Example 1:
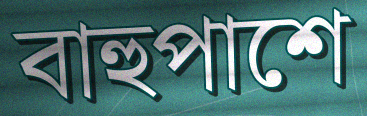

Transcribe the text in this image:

বাহুপাশে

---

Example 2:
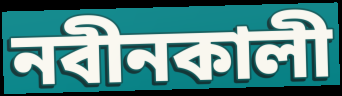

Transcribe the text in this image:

নবীনকালী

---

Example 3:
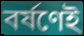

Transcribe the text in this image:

বর্ষণেই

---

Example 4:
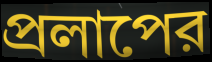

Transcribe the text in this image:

প্রলাপের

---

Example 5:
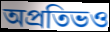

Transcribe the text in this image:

অপ্রতিভও